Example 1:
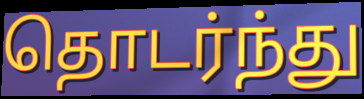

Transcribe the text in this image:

தொடர்ந்து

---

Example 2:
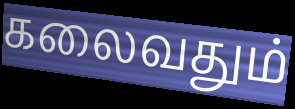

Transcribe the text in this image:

கலைவதும்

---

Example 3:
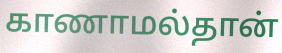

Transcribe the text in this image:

காணாமல்தான்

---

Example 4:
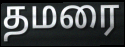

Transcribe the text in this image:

தமரை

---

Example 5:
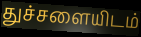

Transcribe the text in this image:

துச்சளையிடம்